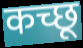
कच्छू